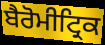
ਬੈਰੋਮੀਟ੍ਰਿਕ